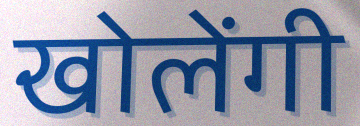
खोलेंगी